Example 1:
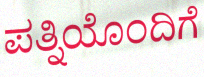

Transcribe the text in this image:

ಪತ್ನಿಯೊಂದಿಗೆ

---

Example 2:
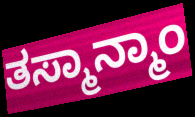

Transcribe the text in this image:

ತಸ್ಮಾನ್ಮಾಂ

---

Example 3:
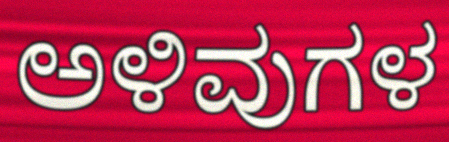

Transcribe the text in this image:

ಅಳಿವುಗಳ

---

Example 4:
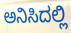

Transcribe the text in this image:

ಅನಿಸಿದಲ್ಲಿ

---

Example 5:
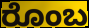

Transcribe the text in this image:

ರೊಂಬ